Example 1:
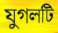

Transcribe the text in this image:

যুগলটি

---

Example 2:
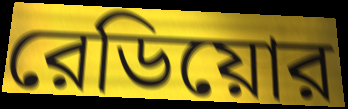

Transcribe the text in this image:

রেডিয়োর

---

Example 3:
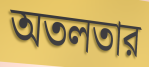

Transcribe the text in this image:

অতলতার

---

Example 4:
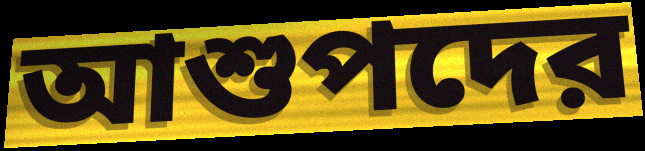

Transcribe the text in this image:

আশুপদের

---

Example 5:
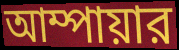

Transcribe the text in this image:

আম্পায়ার